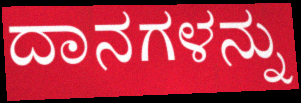
ದಾನಗಳನ್ನು